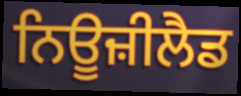
ਨਿਊਜ਼ੀਲੈਡ